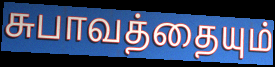
சுபாவத்தையும்